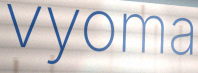
vyoma